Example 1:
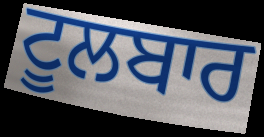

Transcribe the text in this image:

ਟੂਲਬਾਰ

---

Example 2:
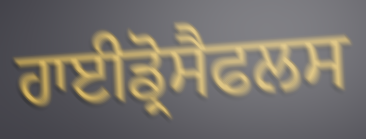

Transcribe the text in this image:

ਹਾਈਡ੍ਰੋਸੈਫਲਸ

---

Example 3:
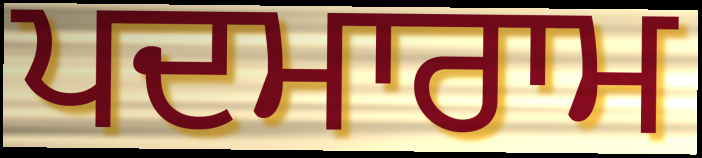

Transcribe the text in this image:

ਪਦਮਾਰਾਮ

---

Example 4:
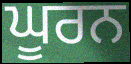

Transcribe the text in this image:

ਘੂਰਨ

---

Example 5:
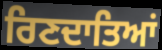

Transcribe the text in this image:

ਰਿਣਦਾਤਿਆਂ